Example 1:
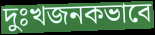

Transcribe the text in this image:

দুঃখজনকভাবে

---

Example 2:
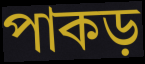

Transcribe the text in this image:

পাকড়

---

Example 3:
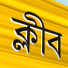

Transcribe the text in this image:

ক্লীব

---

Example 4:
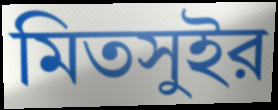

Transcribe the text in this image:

মিতসুইর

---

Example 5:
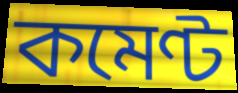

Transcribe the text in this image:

কমেণ্ট